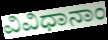
ವಿವಿಧಾನಾಂ